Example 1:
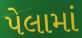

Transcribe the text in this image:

પેલામાં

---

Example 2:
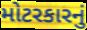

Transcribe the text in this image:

મોટરકારનું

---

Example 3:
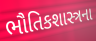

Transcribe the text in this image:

ભૌતિકશાસ્ત્રના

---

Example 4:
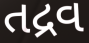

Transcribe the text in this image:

તદ્રવ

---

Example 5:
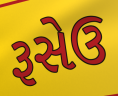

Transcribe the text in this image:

રૂસેઉ